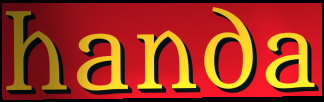
handa